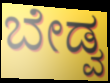
ಬೇಡ್ವ